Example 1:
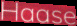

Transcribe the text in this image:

Haase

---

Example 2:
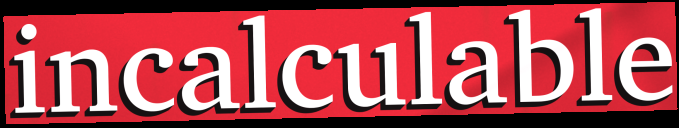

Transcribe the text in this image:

incalculable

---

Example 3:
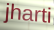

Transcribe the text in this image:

jharti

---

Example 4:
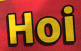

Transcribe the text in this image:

Hoi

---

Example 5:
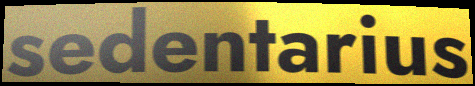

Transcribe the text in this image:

sedentarius